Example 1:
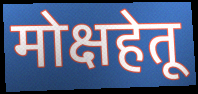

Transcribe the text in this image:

मोक्षहेतू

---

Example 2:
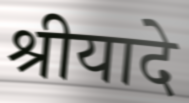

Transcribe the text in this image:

श्रीयादे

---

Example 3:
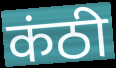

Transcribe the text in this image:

कंठी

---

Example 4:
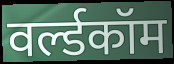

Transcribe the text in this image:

वर्ल्डकॉम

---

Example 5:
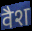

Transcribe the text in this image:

वैश